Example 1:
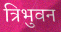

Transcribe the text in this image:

त्रिभुवन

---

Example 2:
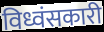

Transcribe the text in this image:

विध्वंसकारी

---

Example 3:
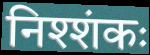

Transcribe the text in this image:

निश्शंकः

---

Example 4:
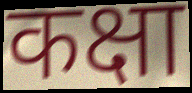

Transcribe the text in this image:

कक्षा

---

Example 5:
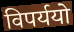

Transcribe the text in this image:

विपर्ययो